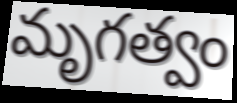
మృగత్వం